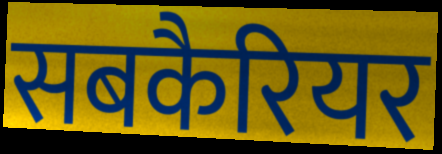
सबकैरियर